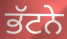
ਭੱਟਨੇ